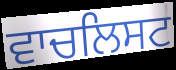
ਵਾਚਲਿਸਟ